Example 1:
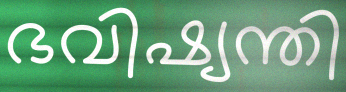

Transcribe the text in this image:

ഭവിഷ്യന്തി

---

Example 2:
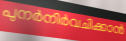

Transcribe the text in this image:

പുനർനിർവചിക്കാൻ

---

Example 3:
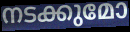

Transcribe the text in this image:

നടക്കുമോ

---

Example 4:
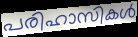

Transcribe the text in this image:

പരിഹാസികൾ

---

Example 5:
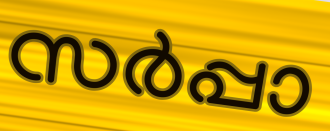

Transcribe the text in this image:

സർപ്പാ